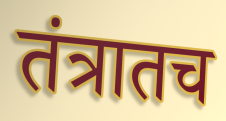
तंत्रातच